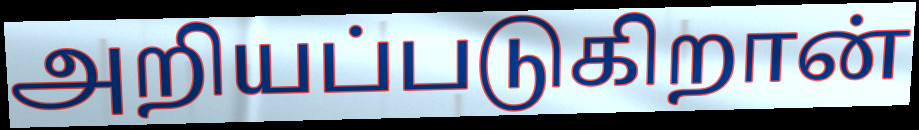
அறியப்படுகிறான்